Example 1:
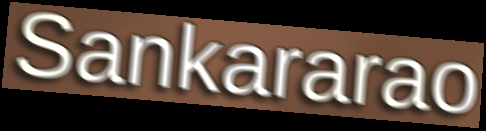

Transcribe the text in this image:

Sankararao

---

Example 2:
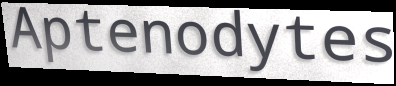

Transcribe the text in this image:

Aptenodytes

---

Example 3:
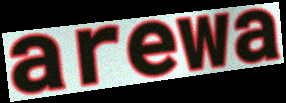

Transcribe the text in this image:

arewa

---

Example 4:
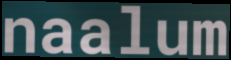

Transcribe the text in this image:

naalum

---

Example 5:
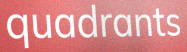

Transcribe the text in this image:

quadrants